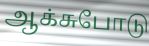
ஆக்சுபோடு